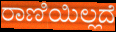
ರಾಣಿಯಿಲ್ಲದೆ